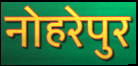
नोहरेपुर